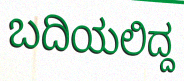
ಬದಿಯಲಿದ್ದ